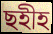
ছহীহ